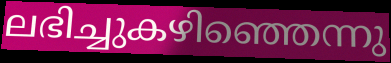
ലഭിച്ചുകഴിഞ്ഞെന്നു